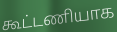
கூட்டணியாக